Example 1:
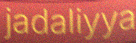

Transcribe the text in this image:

jadaliyya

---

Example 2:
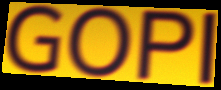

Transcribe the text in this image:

GOPI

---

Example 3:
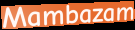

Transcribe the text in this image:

Mambazam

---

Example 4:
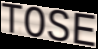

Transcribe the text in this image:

TOSE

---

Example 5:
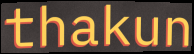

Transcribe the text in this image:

thakun